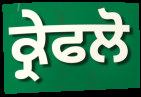
ਕ੍ਰੇਫਲੋ